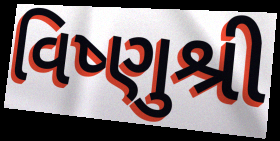
વિષ્ણુશ્રી